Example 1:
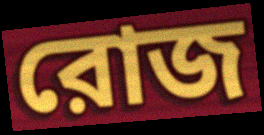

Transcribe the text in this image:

রোজ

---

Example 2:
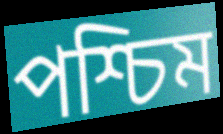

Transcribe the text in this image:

পশ্চিম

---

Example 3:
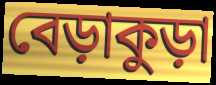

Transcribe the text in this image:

বেড়াকুড়া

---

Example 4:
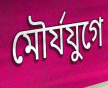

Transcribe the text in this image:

মৌর্যযুগে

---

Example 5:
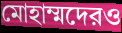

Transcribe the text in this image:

মোহাম্মদেরও